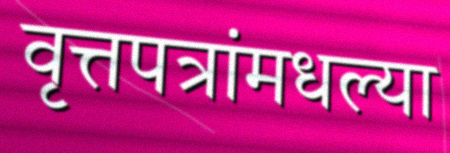
वृत्तपत्रांमधल्या